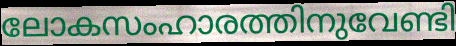
ലോകസംഹാരത്തിനുവേണ്ടി